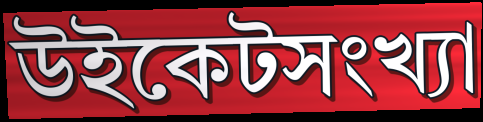
উইকেটসংখ্যা